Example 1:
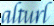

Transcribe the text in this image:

alturl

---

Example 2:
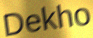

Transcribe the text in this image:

Dekho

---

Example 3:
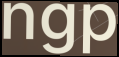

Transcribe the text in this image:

ngp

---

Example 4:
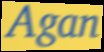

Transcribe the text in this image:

Agan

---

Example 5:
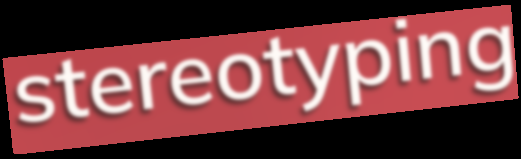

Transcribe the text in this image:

stereotyping